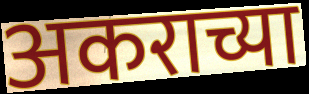
अकराच्या